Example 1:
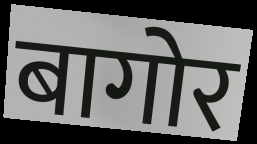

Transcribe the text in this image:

बागोर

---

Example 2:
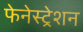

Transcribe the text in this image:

फेनेस्ट्रेशन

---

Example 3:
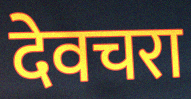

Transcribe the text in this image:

देवचरा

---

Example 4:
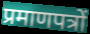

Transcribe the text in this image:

प्रमाणपत्रों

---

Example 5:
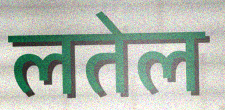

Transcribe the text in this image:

लतेल